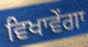
ਵਿਖਾਵੇਂਗਾ